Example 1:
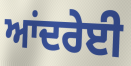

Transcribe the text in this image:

ਆਂਦਰੇਈ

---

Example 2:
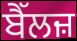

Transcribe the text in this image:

ਬੈੱਲਜ਼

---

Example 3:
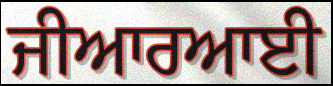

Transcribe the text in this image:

ਜੀਆਰਆਈ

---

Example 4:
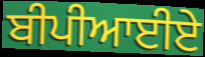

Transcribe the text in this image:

ਬੀਪੀਆਈਏ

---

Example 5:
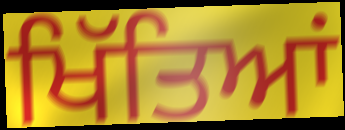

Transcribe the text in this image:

ਖਿੱਤਿਆਂ